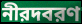
নীরদবরণ